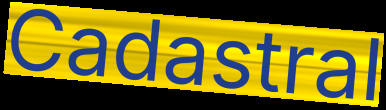
Cadastral